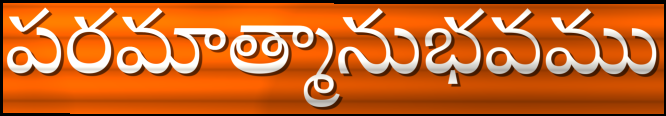
పరమాత్మానుభవము